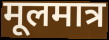
मूलमात्र